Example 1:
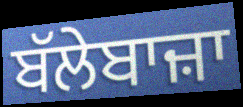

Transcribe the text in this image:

ਬੱਲੇਬਾਜ਼ਾ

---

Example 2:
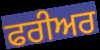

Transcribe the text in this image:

ਫਰੀਅਰ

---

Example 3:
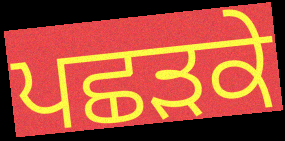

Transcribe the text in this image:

ਪਛੜਕੇ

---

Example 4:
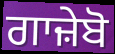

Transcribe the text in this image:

ਗਾਜ਼ੇਬੋ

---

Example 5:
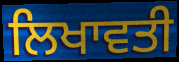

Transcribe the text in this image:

ਲਿਖਾਵਤੀ